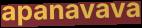
apanavava